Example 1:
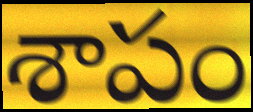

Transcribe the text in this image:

శాపం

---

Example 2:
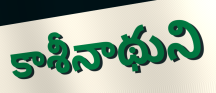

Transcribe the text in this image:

కాశీనాథుని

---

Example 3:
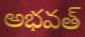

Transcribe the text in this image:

అభవత్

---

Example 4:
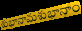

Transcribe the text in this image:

శుభానామశుభానాం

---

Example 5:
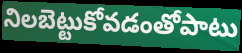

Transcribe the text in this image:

నిలబెట్టుకోవడంతోపాటు